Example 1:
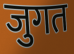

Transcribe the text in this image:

जुगत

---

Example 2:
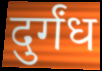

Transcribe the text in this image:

दुर्गंध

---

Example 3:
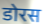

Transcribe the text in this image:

डोरस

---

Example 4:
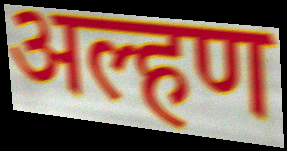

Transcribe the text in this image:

अल्हण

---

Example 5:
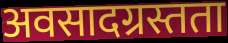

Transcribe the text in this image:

अवसादग्रस्तता